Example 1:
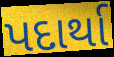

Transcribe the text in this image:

પદાર્થા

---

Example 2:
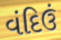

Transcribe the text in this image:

વંદિઉં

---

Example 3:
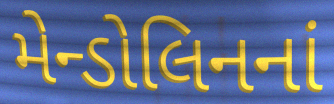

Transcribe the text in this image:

મેન્ડોલિનનાં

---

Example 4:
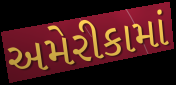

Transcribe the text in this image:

અમેરીકામાં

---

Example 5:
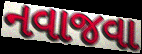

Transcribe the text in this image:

નવાજવા